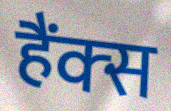
हैंक्‍स